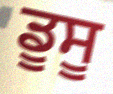
ਡੂਸੂ